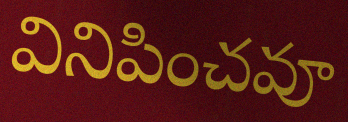
వినిపించవూ